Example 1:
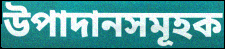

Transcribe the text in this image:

উপাদানসমূহক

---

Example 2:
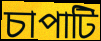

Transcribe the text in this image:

চাপাটি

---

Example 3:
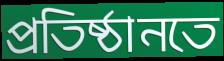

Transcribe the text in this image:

প্ৰতিষ্ঠানতে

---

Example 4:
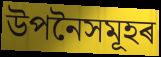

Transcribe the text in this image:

উপনৈসমূহৰ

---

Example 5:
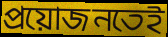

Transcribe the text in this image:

প্ৰয়োজনতেই